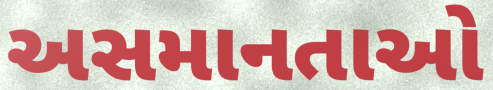
અસમાનતાઓ